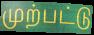
முற்பட்டு